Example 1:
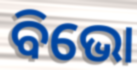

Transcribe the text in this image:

ବିଭୋ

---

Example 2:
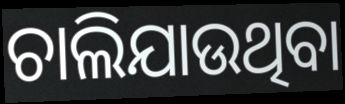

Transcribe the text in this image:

ଚାଲିଯାଉଥିବା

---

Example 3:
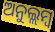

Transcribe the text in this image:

ଅନୁଲ୍ଲମ୍ବ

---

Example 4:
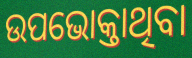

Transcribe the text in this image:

ଉପଭୋକ୍ତାଥିବା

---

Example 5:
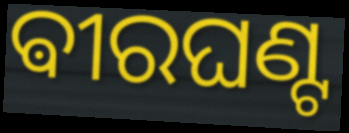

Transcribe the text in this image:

ଵୀରଘଣ୍ଟ